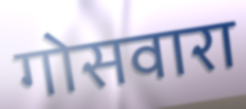
गोसवारा